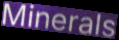
Minerals